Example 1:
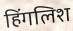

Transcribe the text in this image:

हिंगलिश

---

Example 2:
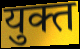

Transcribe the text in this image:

युक्त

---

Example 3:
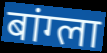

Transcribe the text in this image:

बांग्ला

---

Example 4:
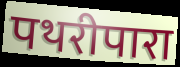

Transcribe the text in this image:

पथरीपारा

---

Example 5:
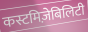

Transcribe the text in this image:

कस्टमिज़ेबिलिटी